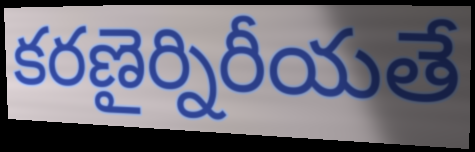
కరణైర్నిరీయతే